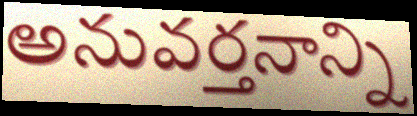
అనువర్తనాన్ని